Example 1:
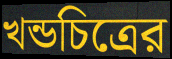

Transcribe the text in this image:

খন্ডচিত্রের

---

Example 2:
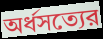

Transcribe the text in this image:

অর্ধসত্যের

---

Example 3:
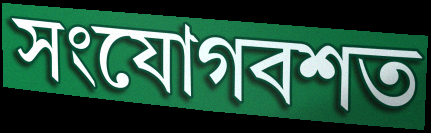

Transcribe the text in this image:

সংযোগবশত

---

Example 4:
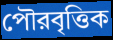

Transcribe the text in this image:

পৌরবৃত্তিক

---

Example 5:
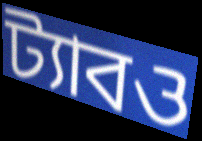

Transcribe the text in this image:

ট্যাবও